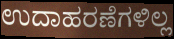
ಉದಾಹರಣೆಗಳಿಲ್ಲ